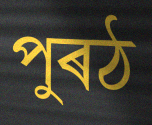
পুৰঠ